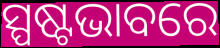
ସ୍ପଷ୍ଟଭାବରେ